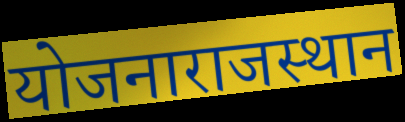
योजनाराजस्थान